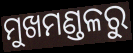
ମୁଖମଣ୍ଡଳରୁ